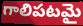
గాలిపటమై